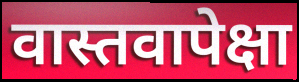
वास्तवापेक्षा